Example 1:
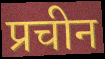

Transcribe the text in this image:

प्रचीन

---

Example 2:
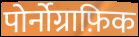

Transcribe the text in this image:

पोर्नोग्राफ़िक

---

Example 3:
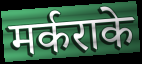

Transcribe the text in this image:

मर्कराके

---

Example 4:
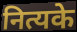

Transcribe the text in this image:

नित्यके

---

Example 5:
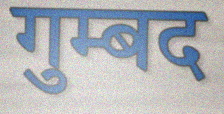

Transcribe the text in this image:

गुम्बद